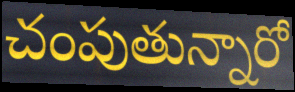
చంపుతున్నారో